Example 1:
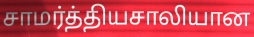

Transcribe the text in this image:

சாமர்த்தியசாலியான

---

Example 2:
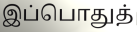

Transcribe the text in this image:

இப்பொதுத்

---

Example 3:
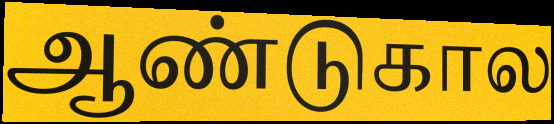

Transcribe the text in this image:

ஆண்டுகால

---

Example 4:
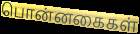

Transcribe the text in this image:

பொன்னகைகள்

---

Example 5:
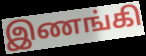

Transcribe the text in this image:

இணங்கி